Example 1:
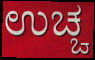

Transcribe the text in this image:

ಉಚ್ಚ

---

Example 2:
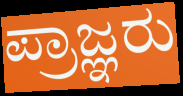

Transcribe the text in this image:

ಪ್ರಾಜ್ಞರು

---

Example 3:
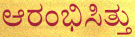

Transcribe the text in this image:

ಆರಂಭಿಸಿತ್ತು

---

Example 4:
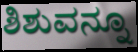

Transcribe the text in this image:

ಶಿಶುವನ್ನೂ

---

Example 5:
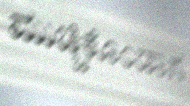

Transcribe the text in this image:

ಮುಚ್ಚಿಕೊಂಡಾಗ